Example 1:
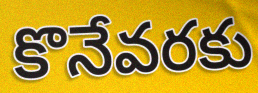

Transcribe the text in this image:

కొనేవరకు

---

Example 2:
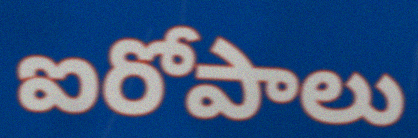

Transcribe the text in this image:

ఐరోపాలు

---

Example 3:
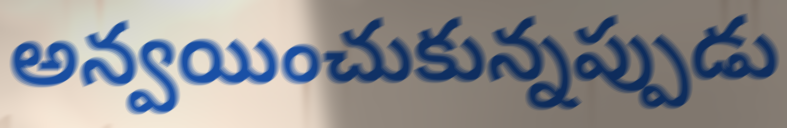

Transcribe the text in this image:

అన్వయించుకున్నప్పుడు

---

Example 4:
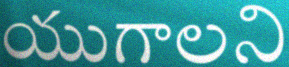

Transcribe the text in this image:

యుగాలని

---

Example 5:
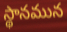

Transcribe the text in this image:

స్థానమున